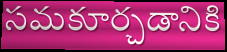
సమకూర్చడానికి